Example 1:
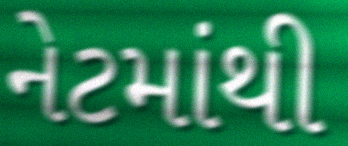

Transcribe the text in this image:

નેટમાંથી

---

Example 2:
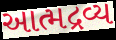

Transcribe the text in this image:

આત્મદ્રવ્ય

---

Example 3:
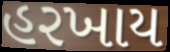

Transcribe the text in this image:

હરખાય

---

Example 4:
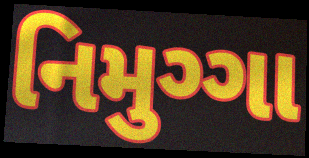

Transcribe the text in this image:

નિમુગ્ગા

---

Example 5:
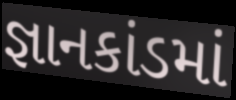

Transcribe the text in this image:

જ્ઞાનકાંડમાં